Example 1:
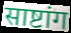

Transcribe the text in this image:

साष्टांग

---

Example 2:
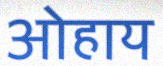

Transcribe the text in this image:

ओहाय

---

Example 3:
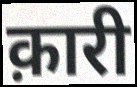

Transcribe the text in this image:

क़ारी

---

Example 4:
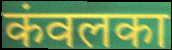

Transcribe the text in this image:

कंवलका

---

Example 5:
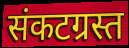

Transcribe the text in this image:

संकटग्रस्त